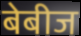
बेबीज